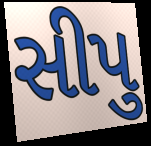
સીપુ